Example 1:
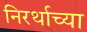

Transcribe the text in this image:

निरर्थाच्या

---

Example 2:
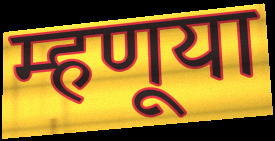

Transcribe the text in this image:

म्हणूया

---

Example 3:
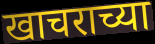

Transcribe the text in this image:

खाचराच्या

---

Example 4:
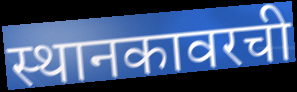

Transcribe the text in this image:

स्थानकावरची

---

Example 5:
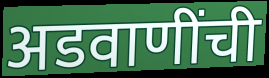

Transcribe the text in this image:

अडवाणींची